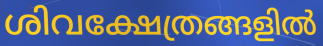
ശിവക്ഷേത്രങ്ങളിൽ